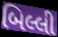
બિલ્લી